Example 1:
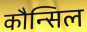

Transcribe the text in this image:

कौन्सिल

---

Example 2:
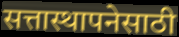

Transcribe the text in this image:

सत्तास्थापनेसाठी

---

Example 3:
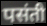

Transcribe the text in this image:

पसंती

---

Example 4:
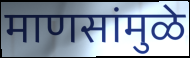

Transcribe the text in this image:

माणसांमुळे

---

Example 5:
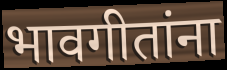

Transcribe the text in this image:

भावगीतांना